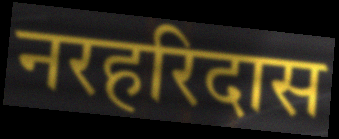
नरहरिदास